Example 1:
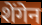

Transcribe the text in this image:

शेंगेन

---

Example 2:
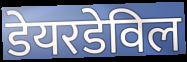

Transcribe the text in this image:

डेयरडेविल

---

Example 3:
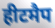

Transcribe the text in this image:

हीटमैप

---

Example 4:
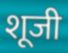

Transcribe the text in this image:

शूजी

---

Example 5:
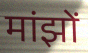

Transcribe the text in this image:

मांझों